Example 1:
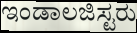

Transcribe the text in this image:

ಇಂಡಾಲಜಿಸ್ಟರು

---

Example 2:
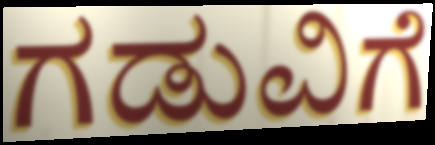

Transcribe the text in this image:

ಗಡುವಿಗೆ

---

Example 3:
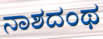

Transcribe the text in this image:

ನಾಶದಂಥ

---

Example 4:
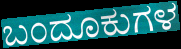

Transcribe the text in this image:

ಬಂದೂಕುಗಳ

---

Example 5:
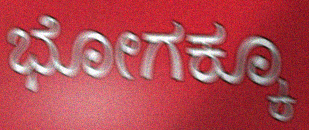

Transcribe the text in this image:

ಭೋಗಕ್ಕೂ